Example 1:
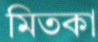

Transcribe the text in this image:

মিতকা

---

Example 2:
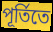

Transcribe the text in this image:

পূর্তিতে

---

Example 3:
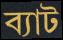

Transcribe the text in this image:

ব্যাট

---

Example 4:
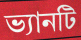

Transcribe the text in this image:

ভ্যানটি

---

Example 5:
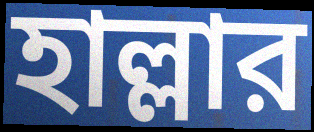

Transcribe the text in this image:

হাল্লার